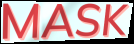
MASK